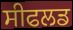
ਸੀਫਲਡ